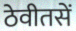
ठेवीतसें